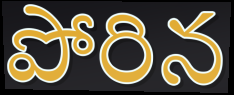
పోరిన